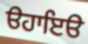
ੳਹਾਇੳ